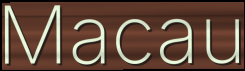
Macau